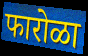
फारोळा